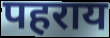
पहराय